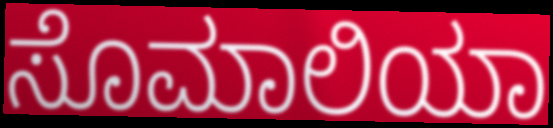
ಸೊಮಾಲಿಯಾ